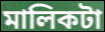
মালিকটা